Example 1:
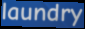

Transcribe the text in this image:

laundry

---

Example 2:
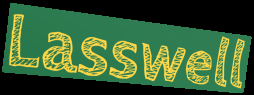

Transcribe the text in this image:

Lasswell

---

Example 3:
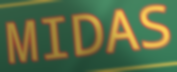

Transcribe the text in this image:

MIDAS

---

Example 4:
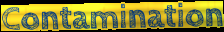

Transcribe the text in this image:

Contamination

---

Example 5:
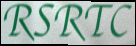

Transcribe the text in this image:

RSRTC